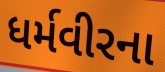
ધર્મવીરના